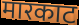
मारकाट